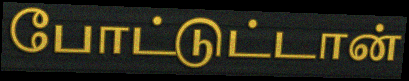
போட்டுட்டான்